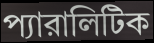
প্যারালিটিক